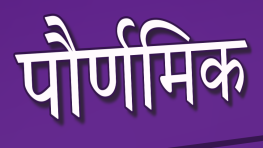
पौर्णमिक